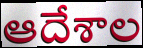
ఆదేశాల